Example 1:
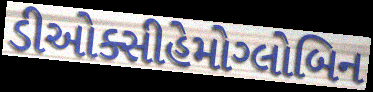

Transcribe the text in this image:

ડીઓક્સીહેમોગ્લોબિન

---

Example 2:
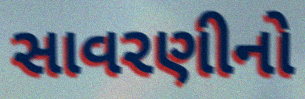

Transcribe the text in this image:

સાવરણીનો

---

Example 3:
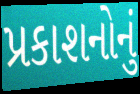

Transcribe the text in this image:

પ્રકાશનોનું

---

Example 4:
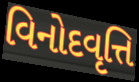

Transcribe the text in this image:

વિનોદવૃત્તિ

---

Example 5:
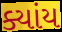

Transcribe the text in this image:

ક્યાંય